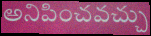
అనిపించవచ్చు